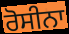
ਰੋਸੀਨਾ